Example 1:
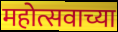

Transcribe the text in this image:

महोत्सवाच्या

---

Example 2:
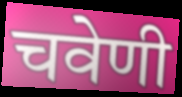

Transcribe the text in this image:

चवेणी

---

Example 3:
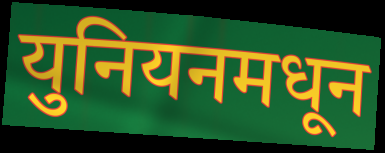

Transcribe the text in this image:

युनियनमधून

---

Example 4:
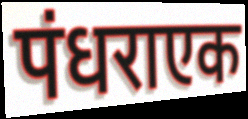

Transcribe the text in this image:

पंधराएक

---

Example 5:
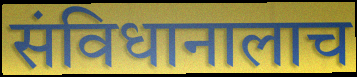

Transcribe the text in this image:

संविधानालाच